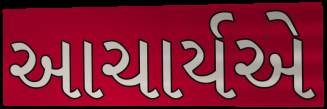
આચાર્યએ